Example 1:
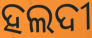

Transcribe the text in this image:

ହଲଦୀ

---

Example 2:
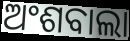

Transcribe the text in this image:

ଅଂଶବାଲା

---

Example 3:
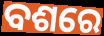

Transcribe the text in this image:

ବଶରେ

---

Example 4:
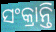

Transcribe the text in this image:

ସଂକ୍ରାନ୍ତି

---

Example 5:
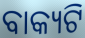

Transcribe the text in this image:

ବାକ୍ୟଟି